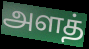
அளத்